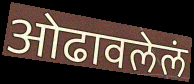
ओढावलेलं